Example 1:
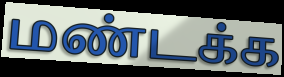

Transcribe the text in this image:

மண்டக்க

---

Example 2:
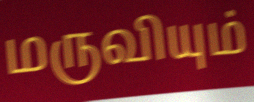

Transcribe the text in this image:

மருவியும்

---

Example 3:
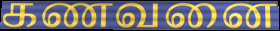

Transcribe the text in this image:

கணவனை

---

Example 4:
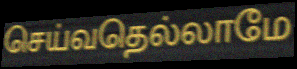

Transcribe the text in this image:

செய்வதெல்லாமே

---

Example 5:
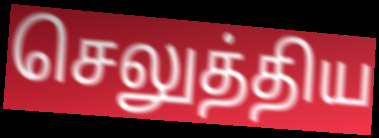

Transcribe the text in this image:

செலுத்திய